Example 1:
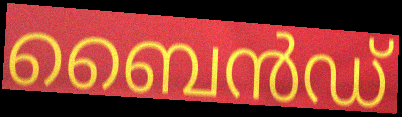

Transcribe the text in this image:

ബൈൻഡ്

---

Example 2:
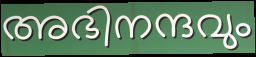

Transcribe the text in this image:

അഭിനന്ദവും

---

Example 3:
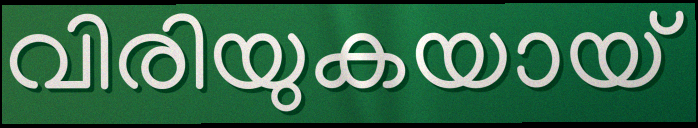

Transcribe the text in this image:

വിരിയുകയായ്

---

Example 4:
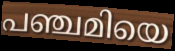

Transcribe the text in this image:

പഞ്ചമിയെ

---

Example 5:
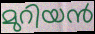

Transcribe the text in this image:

മുറിയൻ